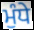
ਮੁੰਧੇ